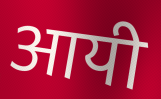
आयी